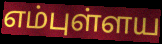
எம்புள்ளய